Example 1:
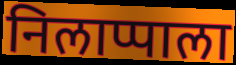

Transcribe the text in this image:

निलाप्पाला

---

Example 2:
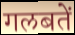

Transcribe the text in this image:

गलबतें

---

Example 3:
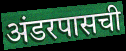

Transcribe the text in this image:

अंडरपासची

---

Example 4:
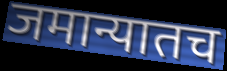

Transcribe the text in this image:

जमान्यातच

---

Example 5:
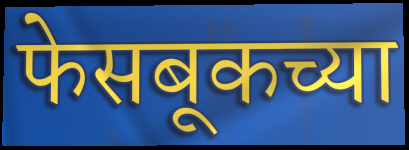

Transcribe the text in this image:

फेसबूकच्या